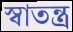
স্বাতন্ত্র